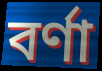
বর্ণা